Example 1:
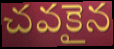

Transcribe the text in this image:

చవకైన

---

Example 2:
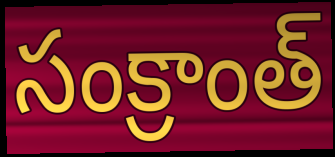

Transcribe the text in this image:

సంక్రాంత్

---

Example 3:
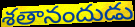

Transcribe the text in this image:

శతానందుడు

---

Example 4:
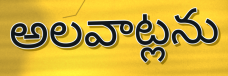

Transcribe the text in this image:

అలవాట్లను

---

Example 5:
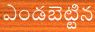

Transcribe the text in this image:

ఎండబెట్టిన